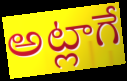
అట్లాగే